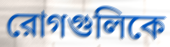
রোগগুলিকে